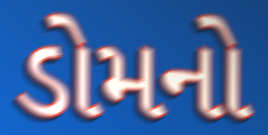
ડોમનો